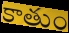
కాతుం